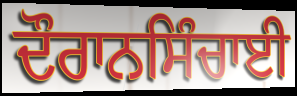
ਦੌਰਾਨਸਿੰਚਾਈ